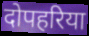
दोपहरिया